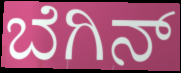
ಬೆಗಿನ್